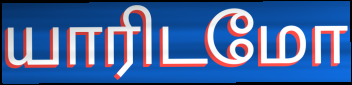
யாரிடமோ